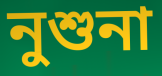
নুশুনা